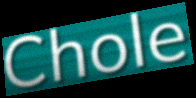
Chole